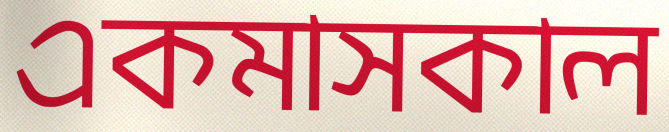
একমাসকাল